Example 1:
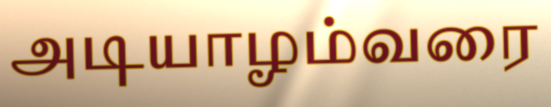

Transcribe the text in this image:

அடியாழம்வரை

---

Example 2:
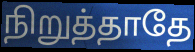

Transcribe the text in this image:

நிறுத்தாதே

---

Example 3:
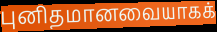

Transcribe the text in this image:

புனிதமானவையாகக்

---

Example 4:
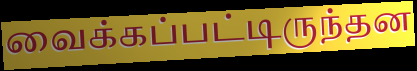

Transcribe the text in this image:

வைக்கப்பட்டிருந்தன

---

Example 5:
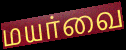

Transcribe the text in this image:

மயர்வை